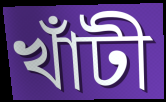
খাঁটী